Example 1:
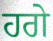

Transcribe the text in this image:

ਹਗੇ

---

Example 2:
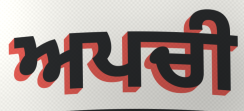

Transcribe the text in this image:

ਅਪਚੀ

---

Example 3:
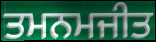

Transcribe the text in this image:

ਤਮਨਮਜੀਤ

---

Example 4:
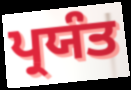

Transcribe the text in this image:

ਪ੍ਰਯੰਤ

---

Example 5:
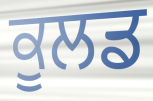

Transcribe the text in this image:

ਕੂਲਡ